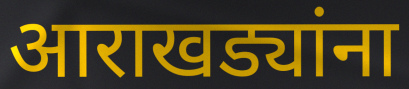
आराखड्यांना